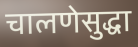
चालणेसुद्धा